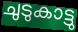
ചുടുകാട്ടു